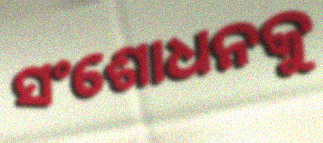
ସଂଶୋଧନକୁ